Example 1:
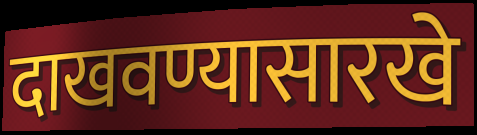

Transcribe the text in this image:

दाखवण्यासारखे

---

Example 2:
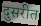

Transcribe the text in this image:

दुसरीत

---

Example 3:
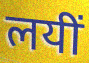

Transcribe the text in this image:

लयीं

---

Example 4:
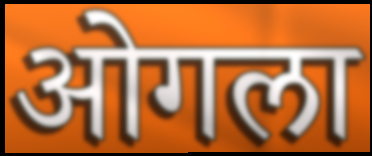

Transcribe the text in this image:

ओगला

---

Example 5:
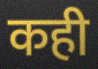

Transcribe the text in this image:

कही